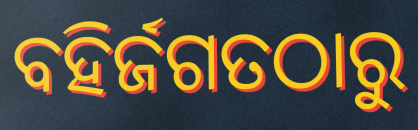
ବହିର୍ଜଗତଠାରୁ